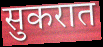
सुकरात